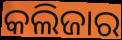
କଲିଜାର